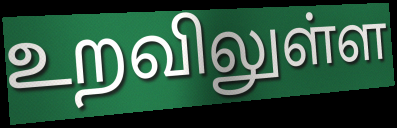
உறவிலுள்ள